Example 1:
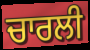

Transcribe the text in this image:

ਚਾਰਲੀ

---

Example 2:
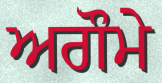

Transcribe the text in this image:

ਅਗੌਮੇ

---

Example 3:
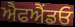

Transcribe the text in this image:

ਐਫਐਂਡਓ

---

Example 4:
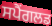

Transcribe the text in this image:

ਸਪੈਂਗਲਡ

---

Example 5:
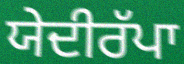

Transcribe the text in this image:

ਯੇਦੀਰੱਪਾ